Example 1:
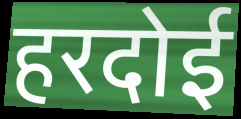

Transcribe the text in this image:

हरदोई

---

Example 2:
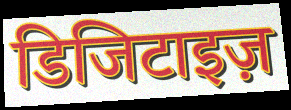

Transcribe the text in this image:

डिजिटाइज़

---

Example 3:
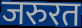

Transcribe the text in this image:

जरुरत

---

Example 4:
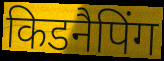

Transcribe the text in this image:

किडनैपिंग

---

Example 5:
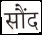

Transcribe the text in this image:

सौंद